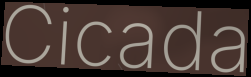
Cicada